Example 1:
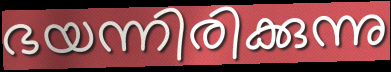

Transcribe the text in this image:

ഭയന്നിരിക്കുന്നു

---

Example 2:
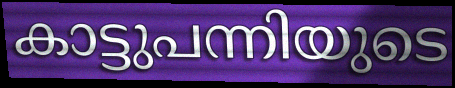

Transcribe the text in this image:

കാട്ടുപന്നിയുടെ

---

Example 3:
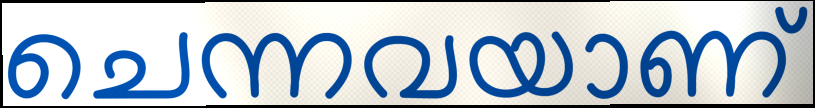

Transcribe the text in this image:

ചെന്നവയാണ്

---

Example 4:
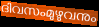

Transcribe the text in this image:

ദിവസംമുഴുവനും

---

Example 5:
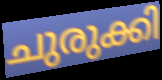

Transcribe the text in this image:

ചുരുക്കി